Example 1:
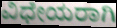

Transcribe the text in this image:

ವಿಧೇಯರಾಗಿ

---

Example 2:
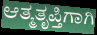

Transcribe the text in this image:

ಆತ್ಮತೃಪ್ತಿಗಾಗಿ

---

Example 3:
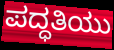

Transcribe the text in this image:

ಪದ್ಧತಿಯು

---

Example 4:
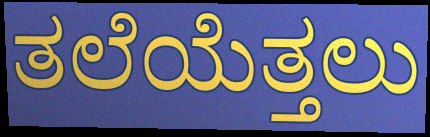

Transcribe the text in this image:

ತಲೆಯೆತ್ತಲು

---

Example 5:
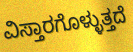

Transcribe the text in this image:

ವಿಸ್ತಾರಗೊಳ್ಳುತ್ತದೆ